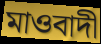
মাওবাদী